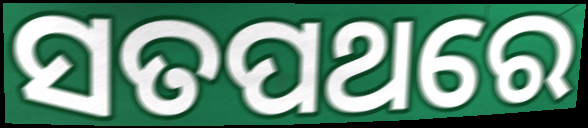
ସତପଥରେ